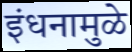
इंधनामुळे